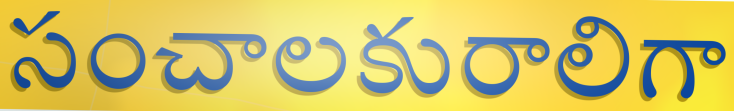
సంచాలకురాలిగా